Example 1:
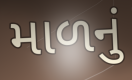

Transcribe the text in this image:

માળનું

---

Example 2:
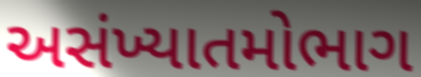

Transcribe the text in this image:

અસંખ્યાતમોભાગ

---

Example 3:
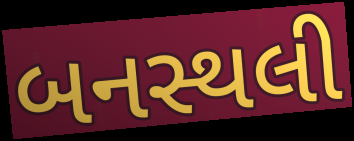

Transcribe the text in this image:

બનસ્થલી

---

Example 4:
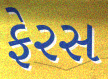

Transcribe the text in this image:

ફેરસ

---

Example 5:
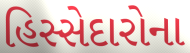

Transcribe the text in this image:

હિસ્સેદારોના